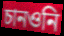
চানওনি